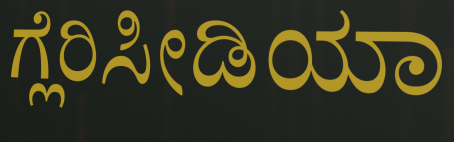
ಗ್ಲೆರಿಸೀಡಿಯಾ